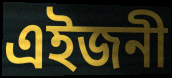
এইজনী